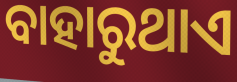
ବାହାରୁଥାଏ